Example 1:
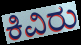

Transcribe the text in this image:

ಕಿವಿರು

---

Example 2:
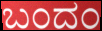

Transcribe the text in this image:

ಬಂದಂ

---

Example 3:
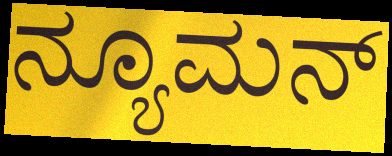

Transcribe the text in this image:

ನ್ಯೂಮನ್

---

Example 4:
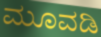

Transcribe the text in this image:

ಮೂವಡಿ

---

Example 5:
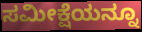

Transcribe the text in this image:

ಸಮೀಕ್ಷೆಯನ್ನೂ